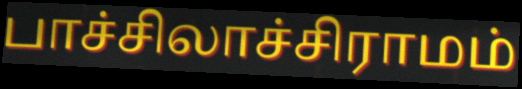
பாச்சிலாச்சிராமம்